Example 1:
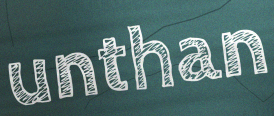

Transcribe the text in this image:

unthan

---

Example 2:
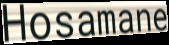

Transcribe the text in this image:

Hosamane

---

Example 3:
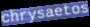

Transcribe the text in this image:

chrysaetos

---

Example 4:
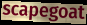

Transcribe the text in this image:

scapegoat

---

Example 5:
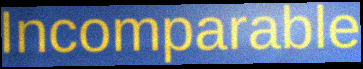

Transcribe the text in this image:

Incomparable